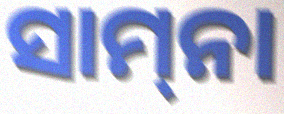
ସାମ୍‍ନା